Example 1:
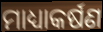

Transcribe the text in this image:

ମାଧ୍ୟାକର୍ଷଣ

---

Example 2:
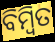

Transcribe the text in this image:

ବିମ୍ବିତ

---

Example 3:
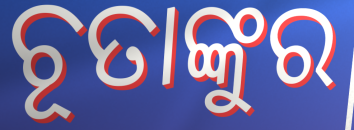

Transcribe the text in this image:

ଚୂତାଙ୍କୁର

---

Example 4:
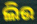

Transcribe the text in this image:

ଲିଉ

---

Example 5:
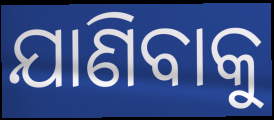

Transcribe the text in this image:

ଯାଣିବାକୁ